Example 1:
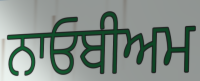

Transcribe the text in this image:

ਨਾਓਬੀਅਮ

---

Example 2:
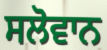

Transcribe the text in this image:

ਸਲੋਵਾਨ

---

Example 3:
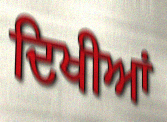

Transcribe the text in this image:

ਦਿਖੀਆਂ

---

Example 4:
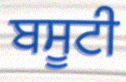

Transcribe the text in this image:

ਬਸੂਟੀ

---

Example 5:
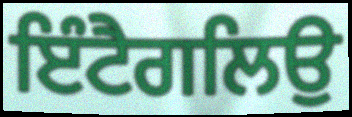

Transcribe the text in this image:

ਇੰਟੈਗਲਿਉ